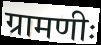
ग्रामणीः